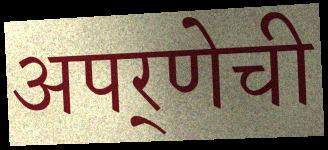
अपर्णेची